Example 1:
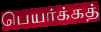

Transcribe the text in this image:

பெயர்க்கத்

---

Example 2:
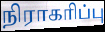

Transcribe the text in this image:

நிராகரிப்பு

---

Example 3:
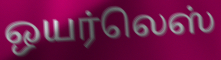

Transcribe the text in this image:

ஒயர்லெஸ்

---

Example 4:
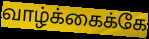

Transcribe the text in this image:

வாழ்க்கைக்கே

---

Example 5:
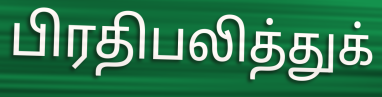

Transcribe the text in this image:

பிரதிபலித்துக்